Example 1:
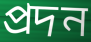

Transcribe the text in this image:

প্ৰদন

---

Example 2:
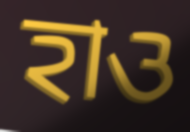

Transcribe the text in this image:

হাও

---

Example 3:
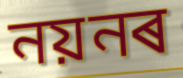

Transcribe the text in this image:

নয়নৰ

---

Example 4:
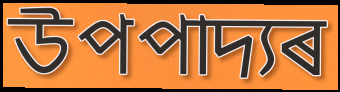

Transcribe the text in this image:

উপপাদ্যৰ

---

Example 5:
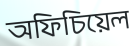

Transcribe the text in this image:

অফিচিয়েল